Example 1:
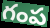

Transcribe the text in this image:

గంప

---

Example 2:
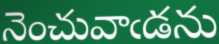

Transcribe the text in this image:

నెంచువాఁడను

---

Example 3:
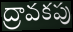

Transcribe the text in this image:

ద్రావకపు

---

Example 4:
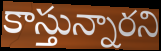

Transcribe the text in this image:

కాస్తున్నారని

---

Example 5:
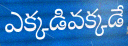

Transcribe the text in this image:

ఎక్కడివక్కడే